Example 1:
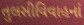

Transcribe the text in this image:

તુલસીવિવાહનાં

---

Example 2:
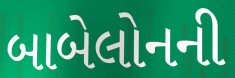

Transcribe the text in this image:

બાબેલોનની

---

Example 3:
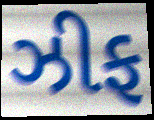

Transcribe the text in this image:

ઝીફ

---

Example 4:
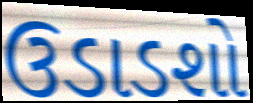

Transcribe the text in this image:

ઉડાડશો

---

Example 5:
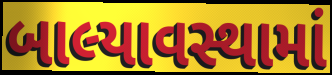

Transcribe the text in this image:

બાલ્યાવસ્થામાં